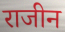
राजीन